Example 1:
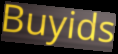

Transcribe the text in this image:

Buyids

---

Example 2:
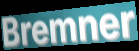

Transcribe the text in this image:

Bremner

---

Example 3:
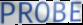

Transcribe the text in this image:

PROBE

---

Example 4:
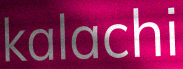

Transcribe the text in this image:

kalachi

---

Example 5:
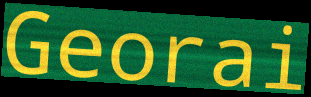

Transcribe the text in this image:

Georai